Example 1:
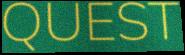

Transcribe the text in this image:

QUEST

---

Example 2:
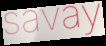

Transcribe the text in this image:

savay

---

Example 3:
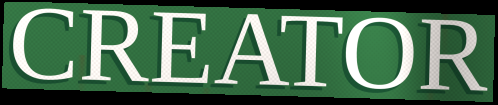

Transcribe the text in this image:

CREATOR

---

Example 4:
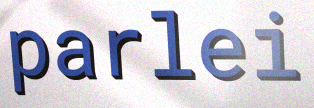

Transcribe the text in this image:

parlei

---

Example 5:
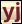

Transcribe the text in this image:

yj